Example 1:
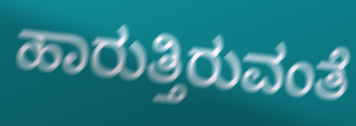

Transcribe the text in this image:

ಹಾರುತ್ತಿರುವಂತೆ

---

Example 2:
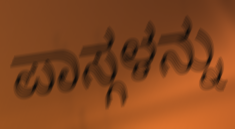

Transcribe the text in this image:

ಪಾಸ್ಗಳನ್ನು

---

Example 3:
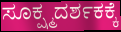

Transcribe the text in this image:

ಸೂಕ್ಷ್ಮದರ್ಶಕಕ್ಕೆ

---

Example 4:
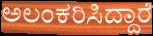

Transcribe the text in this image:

ಅಲಂಕರಿಸಿದ್ದಾರೆ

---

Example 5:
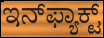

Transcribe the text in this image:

ಇನ್‌ಫ್ಯಾಕ್ಟ್